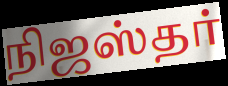
நிஜஸ்தர்